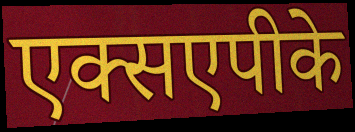
एक्सएपीके